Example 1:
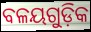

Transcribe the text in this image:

ବଳୟଗୁଡ଼ିକ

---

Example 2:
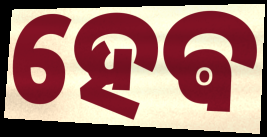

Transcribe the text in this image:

ହେଵ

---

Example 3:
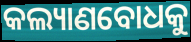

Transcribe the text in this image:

କଲ୍ୟାଣବୋଧକୁ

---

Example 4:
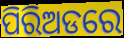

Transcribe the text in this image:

ପିରିଅଡରେ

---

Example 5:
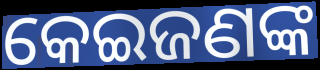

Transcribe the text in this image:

କେଇଜଣଙ୍କ